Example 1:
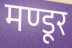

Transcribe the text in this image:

मण्डूर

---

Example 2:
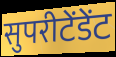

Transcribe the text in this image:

सुपरीटेंडेंट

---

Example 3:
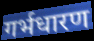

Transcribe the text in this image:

गर्भधारण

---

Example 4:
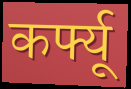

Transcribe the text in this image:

कर्फ्यू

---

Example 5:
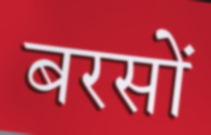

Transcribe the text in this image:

बरसों